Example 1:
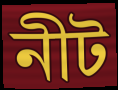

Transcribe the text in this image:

নীট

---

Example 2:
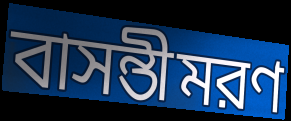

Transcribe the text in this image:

বাসন্তীমরণ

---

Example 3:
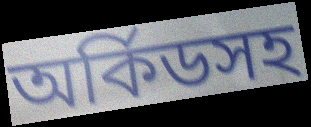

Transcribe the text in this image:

অর্কিডসহ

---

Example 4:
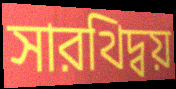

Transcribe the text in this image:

সারথিদ্বয়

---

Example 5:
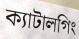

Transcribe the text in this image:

ক্যাটালগিং